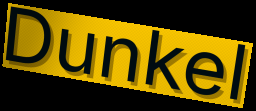
Dunkel